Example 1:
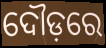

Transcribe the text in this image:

ଦୌଡ଼ରେ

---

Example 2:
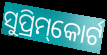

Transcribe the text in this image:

ସୁପ୍ରିମ୍‌କୋର୍ଟ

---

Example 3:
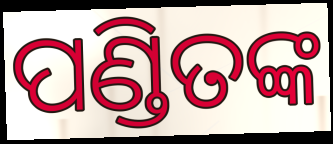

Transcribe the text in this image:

ପଣ୍ଡିତଙ୍କ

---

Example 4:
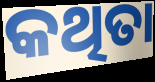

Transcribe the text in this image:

କଥିତା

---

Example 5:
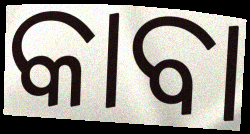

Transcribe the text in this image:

କାବା